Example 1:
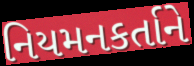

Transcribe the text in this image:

નિયમનકર્તાને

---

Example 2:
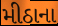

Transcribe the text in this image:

મીઠાના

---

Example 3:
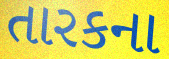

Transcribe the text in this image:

તારકના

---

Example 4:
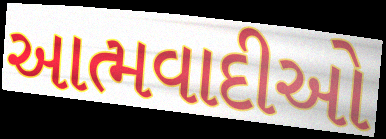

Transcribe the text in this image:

આત્મવાદીઓ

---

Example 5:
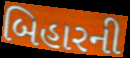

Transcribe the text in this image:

બિહારની